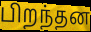
பிறந்தன